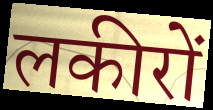
लकीरों